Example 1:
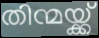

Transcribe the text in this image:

തിന്മയ്ക്ക്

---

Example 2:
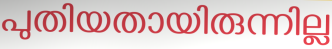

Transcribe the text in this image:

പുതിയതായിരുന്നില്ല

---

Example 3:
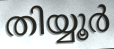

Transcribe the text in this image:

തിയ്യൂർ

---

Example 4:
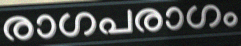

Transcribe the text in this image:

രാഗപരാഗം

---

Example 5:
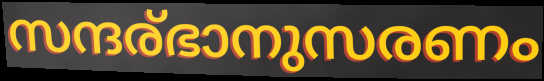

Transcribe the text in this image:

സന്ദര്ഭാനുസരണം